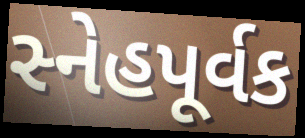
સ્નેહપૂર્વક